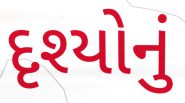
દૃશ્યોનું